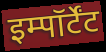
इम्पॉर्टेंट